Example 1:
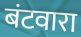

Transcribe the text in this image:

बंटवारा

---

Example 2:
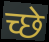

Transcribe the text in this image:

च्छे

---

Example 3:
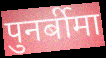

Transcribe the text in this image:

पुनर्बीमा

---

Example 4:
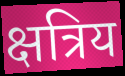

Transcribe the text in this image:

क्षत्रिय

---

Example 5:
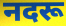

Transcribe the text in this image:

नदरू